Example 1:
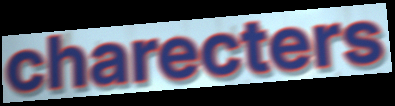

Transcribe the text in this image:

charecters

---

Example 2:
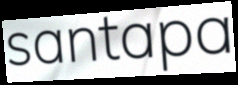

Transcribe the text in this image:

santapa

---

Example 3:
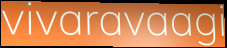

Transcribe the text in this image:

vivaravaagi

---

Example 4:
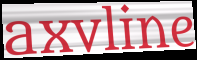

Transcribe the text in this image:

axvline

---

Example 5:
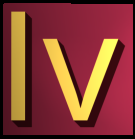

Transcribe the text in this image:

Iv